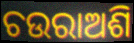
ଚଉରାଅଶି